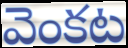
వెంకట